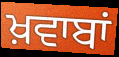
ਖ਼ਵਾਬਾਂ